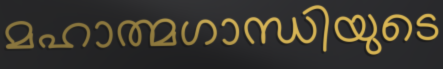
മഹാത്മഗാന്ധിയുടെ